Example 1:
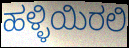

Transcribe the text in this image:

ಹಳ್ಳಿಯಿರಲಿ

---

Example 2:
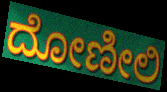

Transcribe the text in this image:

ದೋಣೀಲಿ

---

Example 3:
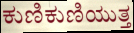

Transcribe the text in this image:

ಕುಣಿಕುಣಿಯುತ್ತ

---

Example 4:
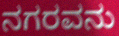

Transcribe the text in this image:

ನಗರವನು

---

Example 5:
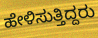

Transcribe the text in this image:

ಹೇಳಿಸುತ್ತಿದ್ದರು